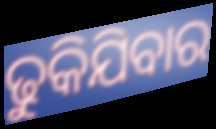
ଢୁକିଯିବାର